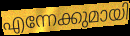
എന്നേക്കുമായി